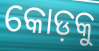
କୋଡ଼କୁ